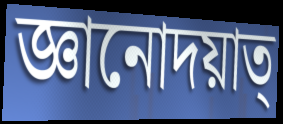
জ্ঞানোদয়াত্